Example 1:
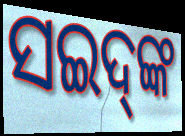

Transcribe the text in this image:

ସଇଦ୍‌ଙ୍କ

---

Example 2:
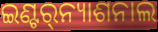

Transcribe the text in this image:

ଇଣ୍ଟର୍‌ନ୍ୟାଶନାଲ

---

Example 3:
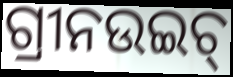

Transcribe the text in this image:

ଗ୍ରୀନଉଇଚ୍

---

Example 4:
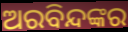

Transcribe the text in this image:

ଅରବିନ୍ଦଙ୍କର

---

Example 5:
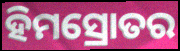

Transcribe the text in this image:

ହିମସ୍ରୋତର